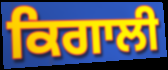
ਕਿਗਾਲੀ